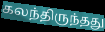
கலந்திருந்தது